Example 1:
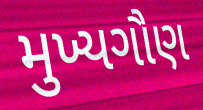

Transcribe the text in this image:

મુખ્યગૌણ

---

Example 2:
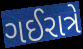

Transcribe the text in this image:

ગઈરાત્રે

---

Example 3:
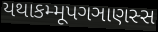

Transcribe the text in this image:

યથાકમ્મૂપગઞાણસ્સ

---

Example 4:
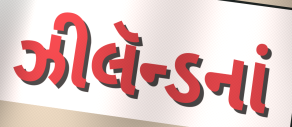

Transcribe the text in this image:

ઝીલૅન્ડનાં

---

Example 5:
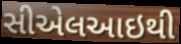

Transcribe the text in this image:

સીએલઆઇથી